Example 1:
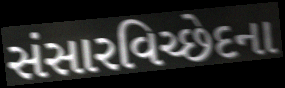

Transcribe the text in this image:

સંસારવિચ્છેદના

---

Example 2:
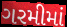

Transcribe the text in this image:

ગરમીમાં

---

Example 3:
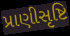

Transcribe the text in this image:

પ્રાણીસૃષ્ટિ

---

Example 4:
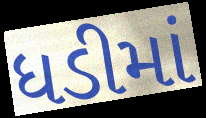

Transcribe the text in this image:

ધડીમાં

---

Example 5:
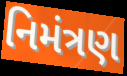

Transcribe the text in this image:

નિમંત્રણ